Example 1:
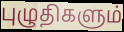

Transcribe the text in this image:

புழுதிகளும்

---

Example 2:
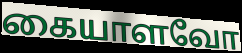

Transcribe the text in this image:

கையாளவோ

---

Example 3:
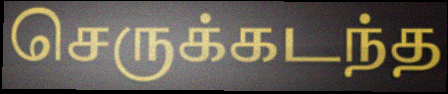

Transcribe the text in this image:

செருக்கடந்த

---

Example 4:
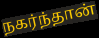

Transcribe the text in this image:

நகர்ந்தான்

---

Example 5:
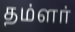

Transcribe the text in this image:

தம்ளர்